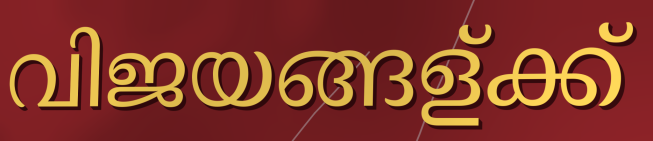
വിജയങ്ങള്ക്ക്